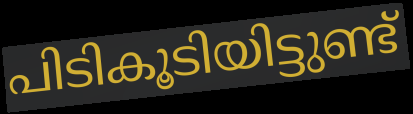
പിടികൂടിയിട്ടുണ്ട്